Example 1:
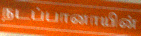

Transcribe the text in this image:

நடப்பானாயின்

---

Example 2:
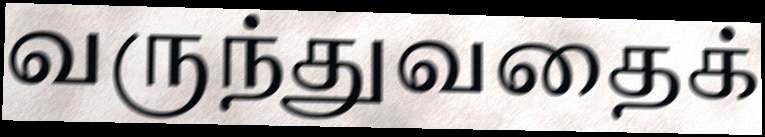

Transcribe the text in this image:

வருந்துவதைக்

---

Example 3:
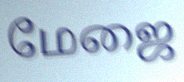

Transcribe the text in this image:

மேஜை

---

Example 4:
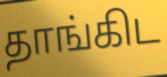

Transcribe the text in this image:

தாங்கிட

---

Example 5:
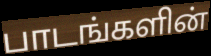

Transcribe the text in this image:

பாடங்களின்